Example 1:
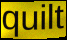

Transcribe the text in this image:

quilt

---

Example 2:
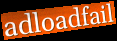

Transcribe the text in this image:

adloadfail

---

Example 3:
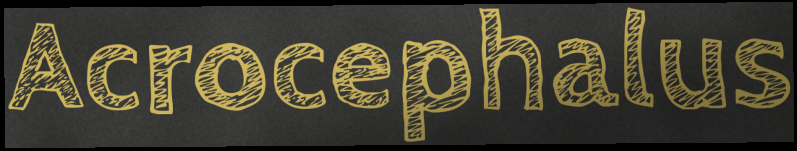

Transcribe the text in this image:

Acrocephalus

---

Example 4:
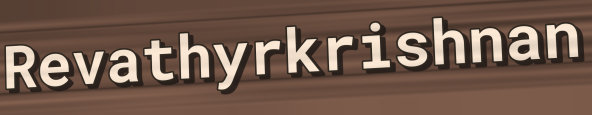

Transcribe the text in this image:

Revathyrkrishnan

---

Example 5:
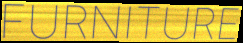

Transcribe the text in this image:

FURNITURE